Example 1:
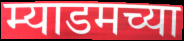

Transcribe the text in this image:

म्याडमच्या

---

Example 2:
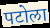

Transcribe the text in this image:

पटोला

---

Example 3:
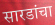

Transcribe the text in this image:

सारडांचा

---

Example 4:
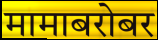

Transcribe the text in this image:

मामाबरोबर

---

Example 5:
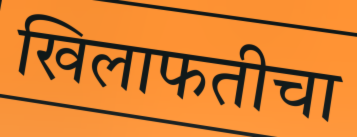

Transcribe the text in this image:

खिलाफतीचा